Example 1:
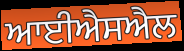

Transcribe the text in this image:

ਆਈਐਸਐਲ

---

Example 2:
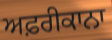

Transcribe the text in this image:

ਅਫ਼ਰੀਕਾਨਾ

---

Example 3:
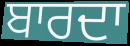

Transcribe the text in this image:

ਬਾਰਦਾ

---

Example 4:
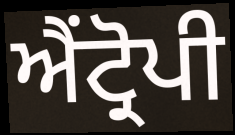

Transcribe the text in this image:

ਐਂਟ੍ਰੋਪੀ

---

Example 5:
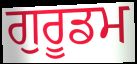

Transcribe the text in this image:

ਗੁਰੂਡਮ